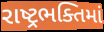
રાષ્ટ્રભક્તિમાં